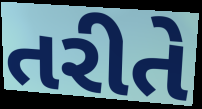
તરીતે